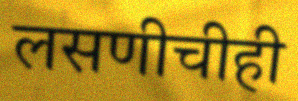
लसणीचीही